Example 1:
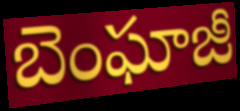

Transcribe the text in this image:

బెంఘాజీ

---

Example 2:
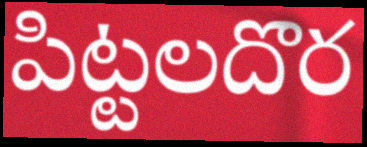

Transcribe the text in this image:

పిట్టలదొర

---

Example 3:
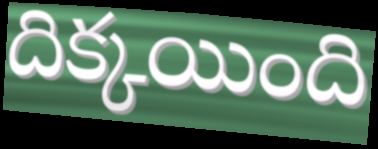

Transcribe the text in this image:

దిక్కయింది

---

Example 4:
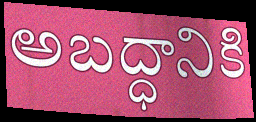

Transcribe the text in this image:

అబద్ధానికి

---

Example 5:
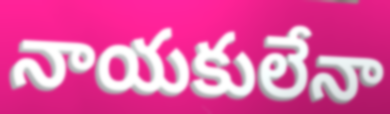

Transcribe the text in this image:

నాయకులేనా